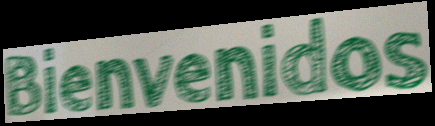
Bienvenidos